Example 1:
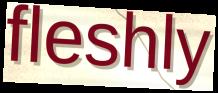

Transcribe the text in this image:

fleshly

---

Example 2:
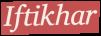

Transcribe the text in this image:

Iftikhar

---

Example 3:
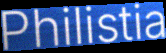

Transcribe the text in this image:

Philistia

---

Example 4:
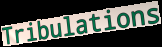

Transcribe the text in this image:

Tribulations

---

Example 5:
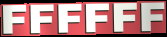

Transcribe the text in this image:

FFFFFF